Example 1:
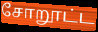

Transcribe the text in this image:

சோறூட்ட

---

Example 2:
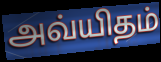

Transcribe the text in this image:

அவ்யிதம்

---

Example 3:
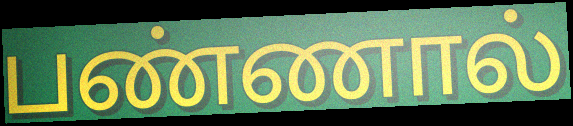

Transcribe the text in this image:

பண்ணால்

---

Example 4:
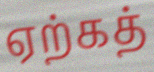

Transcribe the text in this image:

ஏற்கத்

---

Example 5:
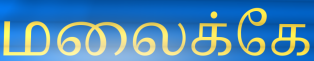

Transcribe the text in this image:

மலைக்கே